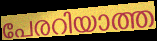
പേരറിയാത്ത